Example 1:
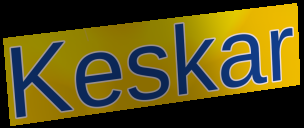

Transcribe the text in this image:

Keskar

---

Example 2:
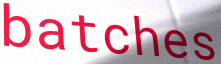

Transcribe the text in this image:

batches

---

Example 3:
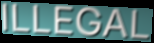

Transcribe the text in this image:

ILLEGAL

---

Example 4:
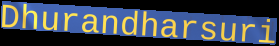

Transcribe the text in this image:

Dhurandharsuri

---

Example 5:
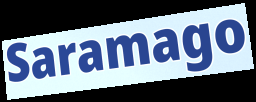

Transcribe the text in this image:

Saramago